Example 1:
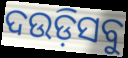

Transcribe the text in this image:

ଦଉଡ଼ିସବୁ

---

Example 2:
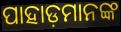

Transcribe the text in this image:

ପାହାଡ଼ମାନଙ୍କ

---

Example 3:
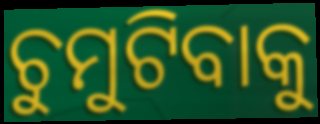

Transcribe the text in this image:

ଚୁମୁଟିବାକୁ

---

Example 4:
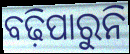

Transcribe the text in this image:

ବଢ଼ିପାରୁନି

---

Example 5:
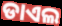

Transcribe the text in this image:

ଡାଏଲ